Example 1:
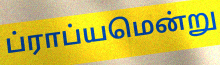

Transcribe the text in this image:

ப்ராப்யமென்று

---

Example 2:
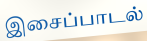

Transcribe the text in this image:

இசைப்பாடல்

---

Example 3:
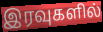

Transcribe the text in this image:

இரவுகளில்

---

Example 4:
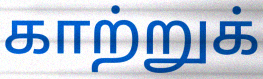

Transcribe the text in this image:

காற்றுக்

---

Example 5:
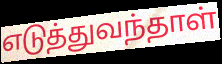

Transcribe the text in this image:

எடுத்துவந்தாள்